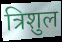
त्रिशुल